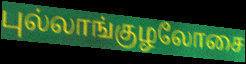
புல்லாங்குழலோசை